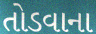
તોડવાના